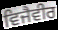
ਵਿਜੈਵੀਰ